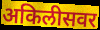
अकिलीसवर